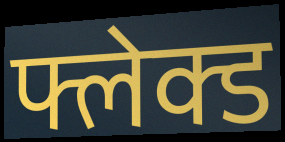
फ्लेक्ड